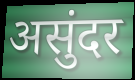
असुंदर